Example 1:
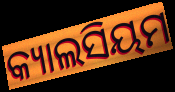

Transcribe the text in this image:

କ୍ୟାଲସିୟମ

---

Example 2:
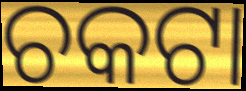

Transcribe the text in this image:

ଚକଟା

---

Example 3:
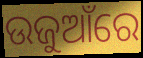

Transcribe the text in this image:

ଉଜୁଆଁରେ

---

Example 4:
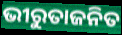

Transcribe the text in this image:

ଭୀରୁତାଜନିତ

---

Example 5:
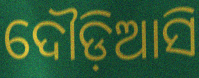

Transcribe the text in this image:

ଦୌଡ଼ିଆସି